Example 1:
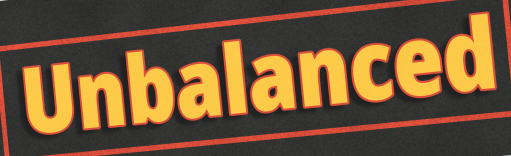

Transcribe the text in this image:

Unbalanced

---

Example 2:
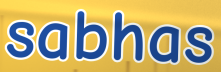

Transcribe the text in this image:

sabhas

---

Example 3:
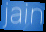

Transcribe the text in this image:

jain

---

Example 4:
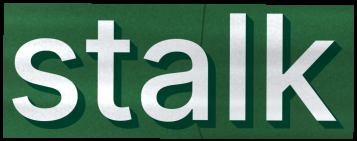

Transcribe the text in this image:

stalk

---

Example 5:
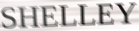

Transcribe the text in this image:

SHELLEY